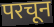
परचून